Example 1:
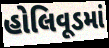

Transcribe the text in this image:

હોલિવૂડમાં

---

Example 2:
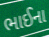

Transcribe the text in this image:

ભાઈના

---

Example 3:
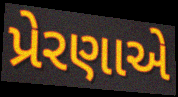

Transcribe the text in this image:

પ્રેરણાએ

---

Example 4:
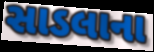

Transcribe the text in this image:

સાડલાના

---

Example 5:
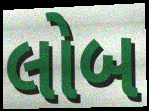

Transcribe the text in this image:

લોબ